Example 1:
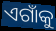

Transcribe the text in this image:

ଏଗାଁକୁ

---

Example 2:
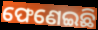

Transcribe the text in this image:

ଫେଣେଇଛି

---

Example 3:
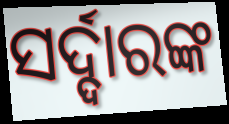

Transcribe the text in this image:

ସର୍ଦ୍ଦାରଙ୍କ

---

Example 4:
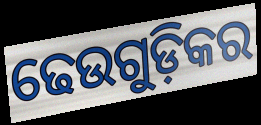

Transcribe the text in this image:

ଢେଉଗୁଡ଼ିକର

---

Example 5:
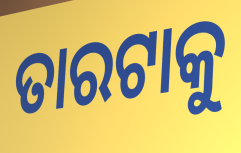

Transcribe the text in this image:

ତାରଟାକୁ